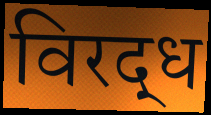
विरद्ध